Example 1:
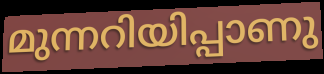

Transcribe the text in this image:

മുന്നറിയിപ്പാണു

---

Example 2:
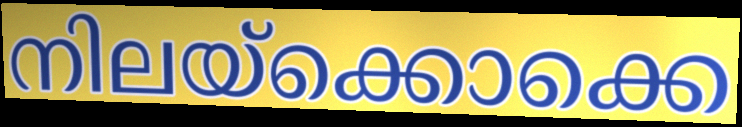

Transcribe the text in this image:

നിലയ്ക്കൊക്കെ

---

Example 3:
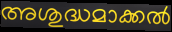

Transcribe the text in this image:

അശുദ്ധമാക്കൽ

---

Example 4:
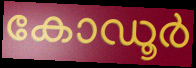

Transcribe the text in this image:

കോഡൂർ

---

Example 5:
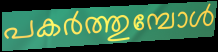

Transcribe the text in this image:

പകർത്തുമ്പോൾ